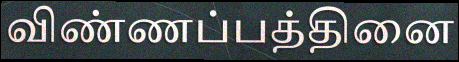
விண்ணப்பத்தினை